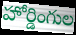
హోర్డింగుల